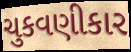
ચુકવણીકાર